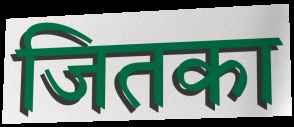
जितका